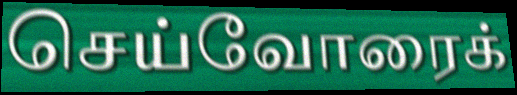
செய்வோரைக்